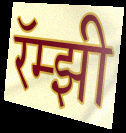
रॅम्झी